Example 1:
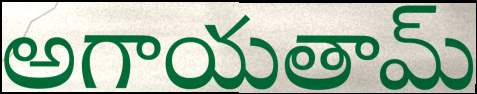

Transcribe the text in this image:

అగాయతామ్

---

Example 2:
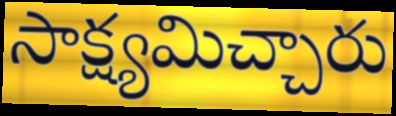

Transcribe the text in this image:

సాక్ష్యమిచ్చారు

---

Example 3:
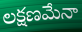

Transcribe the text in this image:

లక్షణమేనా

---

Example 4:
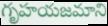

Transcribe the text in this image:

గృహయజమాని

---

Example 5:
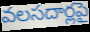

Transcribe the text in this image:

వలసదార్లపై